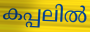
കപ്പലിൽ